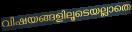
വിഷയങ്ങളിലൂടെയല്ലാതെ